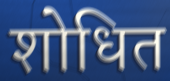
शोधित